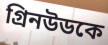
গ্রিনউডকে